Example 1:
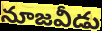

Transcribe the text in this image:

నూజవీడు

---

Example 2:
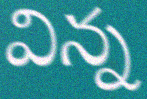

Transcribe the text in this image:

విన్న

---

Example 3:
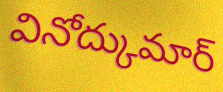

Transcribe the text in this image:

వినోద్కుమార్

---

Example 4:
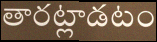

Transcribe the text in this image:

తారట్లాడటం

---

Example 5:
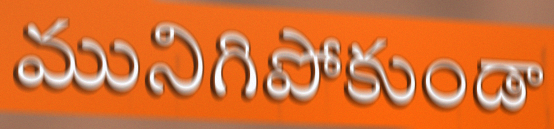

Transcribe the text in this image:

మునిగిపోకుండా